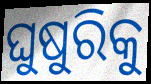
ଘୁଷୁରିକୁ